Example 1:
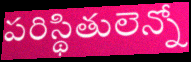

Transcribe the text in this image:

పరిస్థితులెన్నో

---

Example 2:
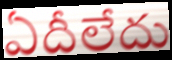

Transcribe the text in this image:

ఏదీలేదు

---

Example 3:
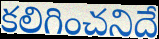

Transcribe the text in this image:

కలిగించనిదే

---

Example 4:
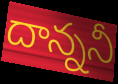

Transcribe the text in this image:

దాన్ననీ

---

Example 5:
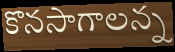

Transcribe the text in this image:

కొనసాగాలన్న